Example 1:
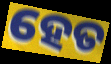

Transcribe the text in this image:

ହେତ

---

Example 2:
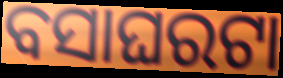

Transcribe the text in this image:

ବସାଘରଟା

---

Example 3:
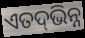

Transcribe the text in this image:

ଏତଦ୍‍ଭିନ୍ନ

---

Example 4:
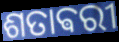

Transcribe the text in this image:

ଶତାଵରୀ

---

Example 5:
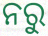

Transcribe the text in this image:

ନରୁ